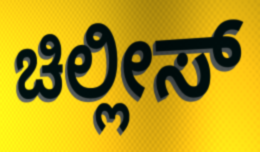
ಚಿಲ್ಲೀಸ್